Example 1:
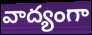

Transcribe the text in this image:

వాద్యంగా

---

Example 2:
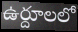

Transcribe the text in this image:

ఉర్దూలలో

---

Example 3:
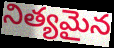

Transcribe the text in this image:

నిత్యమైన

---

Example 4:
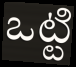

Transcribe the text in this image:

ఒట్టి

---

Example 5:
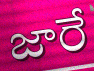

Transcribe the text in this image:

జారే